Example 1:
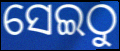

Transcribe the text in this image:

ସେଇଠୁ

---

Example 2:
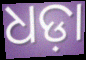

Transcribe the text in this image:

ଧଡ଼ା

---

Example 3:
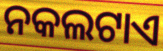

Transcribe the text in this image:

ନକଲଟାଏ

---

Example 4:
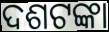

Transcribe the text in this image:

ଦଶଟଙ୍କା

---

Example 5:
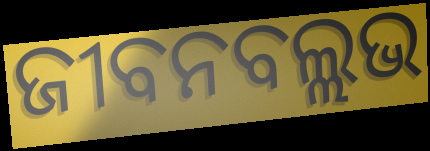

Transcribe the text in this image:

ଜୀବନବଲ୍ଲଭ